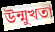
উন্মুখতা